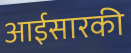
आईसारकी